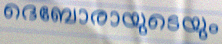
ദെബോരായുടെയും